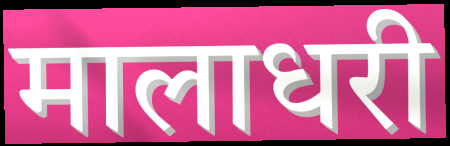
मालाधरी